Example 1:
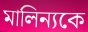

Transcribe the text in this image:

মালিন্যকে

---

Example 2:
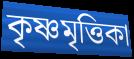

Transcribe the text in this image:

কৃষ্ণমৃত্তিকা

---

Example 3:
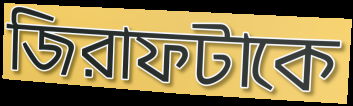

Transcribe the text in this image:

জিরাফটাকে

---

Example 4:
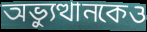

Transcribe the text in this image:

অভ্যুত্থানকেও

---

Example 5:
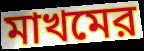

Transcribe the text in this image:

মাখমের